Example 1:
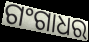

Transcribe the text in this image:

ଗଂଗାଧର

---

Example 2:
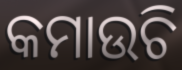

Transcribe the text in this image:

କମାଉଚି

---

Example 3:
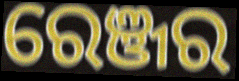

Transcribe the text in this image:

ରେଞ୍ଜର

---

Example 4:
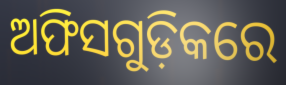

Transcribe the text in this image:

ଅଫିସଗୁଡ଼ିକରେ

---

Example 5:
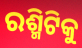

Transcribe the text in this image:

ରଶ୍ମିଟିକୁ